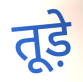
तूड़े